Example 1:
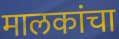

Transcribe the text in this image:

मालकांचा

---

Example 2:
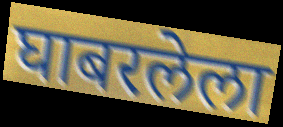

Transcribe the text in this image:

घाबरलेला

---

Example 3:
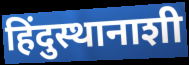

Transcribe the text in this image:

हिंदुस्थानाशी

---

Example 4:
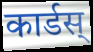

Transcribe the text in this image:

कार्डस्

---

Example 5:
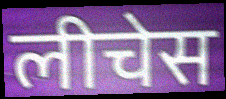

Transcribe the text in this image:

लीचेस